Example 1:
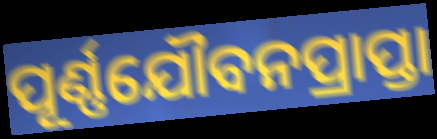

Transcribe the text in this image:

ପୂର୍ଣ୍ଣଯୌବନପ୍ରାପ୍ତା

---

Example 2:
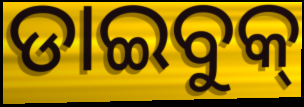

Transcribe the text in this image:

ଡାଇବୁକ୍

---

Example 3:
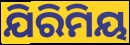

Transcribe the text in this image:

ଯିରିମିୟ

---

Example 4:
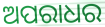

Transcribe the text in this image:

ଅପରାଧର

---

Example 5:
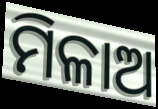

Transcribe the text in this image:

ମିଳାଅ